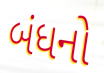
બંધનો